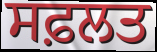
ਸਫ਼ਲਤ